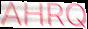
AHRQ